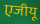
एजीयू